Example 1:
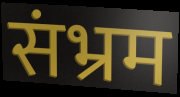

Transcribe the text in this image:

संभ्रम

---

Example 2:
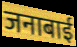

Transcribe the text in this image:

जनाबाई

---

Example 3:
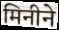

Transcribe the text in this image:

मिनीने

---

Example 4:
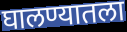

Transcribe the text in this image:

घालण्यातला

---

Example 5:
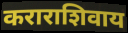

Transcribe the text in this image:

कराराशिवाय